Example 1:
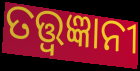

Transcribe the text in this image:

ତତ୍ତ୍ଵଜ୍ଞାନୀ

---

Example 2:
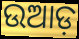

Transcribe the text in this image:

ଉଆଡ଼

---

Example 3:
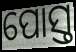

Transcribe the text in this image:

ପୋସ୍ତ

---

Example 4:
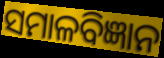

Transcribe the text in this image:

ସମାଳବିଜ୍ଞାନ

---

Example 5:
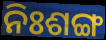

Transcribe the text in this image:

ନିଃଶଙ୍ଗ